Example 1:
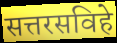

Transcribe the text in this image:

सत्तरसविहे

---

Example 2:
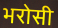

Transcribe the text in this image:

भरोसी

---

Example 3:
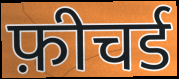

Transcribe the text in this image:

फ़ीचर्ड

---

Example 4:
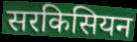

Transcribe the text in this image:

सरकिसियन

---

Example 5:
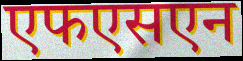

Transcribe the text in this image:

एफएसएन